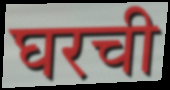
घरची